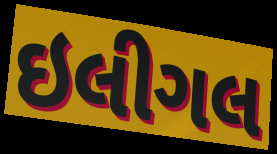
ઇલીગલ